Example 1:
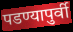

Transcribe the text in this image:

पडण्यापुर्वी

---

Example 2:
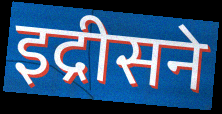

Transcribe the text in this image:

इद्रीसने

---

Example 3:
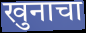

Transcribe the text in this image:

खुनाचा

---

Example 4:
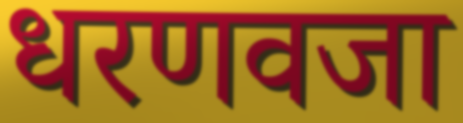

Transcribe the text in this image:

धरणवजा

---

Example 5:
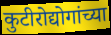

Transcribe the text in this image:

कुटीरोद्योगांच्या